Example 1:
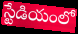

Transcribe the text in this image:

స్టేడియంలో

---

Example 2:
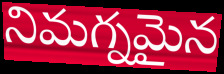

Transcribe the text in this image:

నిమగ్నమైన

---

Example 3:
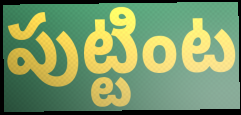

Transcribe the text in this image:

పుట్టింట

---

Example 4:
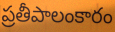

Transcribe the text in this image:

ప్రతీపాలంకారం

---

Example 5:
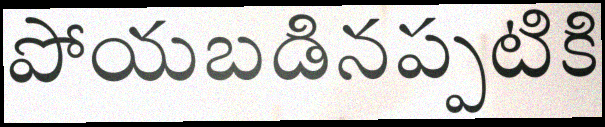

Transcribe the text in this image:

పోయబడినప్పటికి